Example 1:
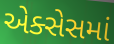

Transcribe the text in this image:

એક્સેસમાં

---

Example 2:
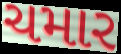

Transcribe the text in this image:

ચમાર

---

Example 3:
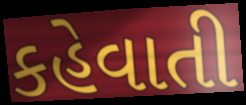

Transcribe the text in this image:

કહેવાતી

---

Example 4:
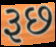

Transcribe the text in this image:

રૂછ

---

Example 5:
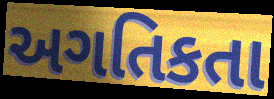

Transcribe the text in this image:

અગતિકતા